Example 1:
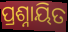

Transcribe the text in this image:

ପ୍ରଶ୍ନାୟିତ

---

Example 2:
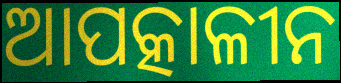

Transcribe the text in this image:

ଆପତ୍କାଳୀନ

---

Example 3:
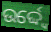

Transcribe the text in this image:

ଉର୍ଦ୍ଦ୍ୱେ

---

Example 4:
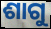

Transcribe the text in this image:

ଶାଗୁ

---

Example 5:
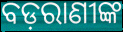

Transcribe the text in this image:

ବଡ଼ରାଣୀଙ୍କ